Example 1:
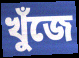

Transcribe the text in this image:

খুঁজে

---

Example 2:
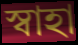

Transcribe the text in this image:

স্বাহা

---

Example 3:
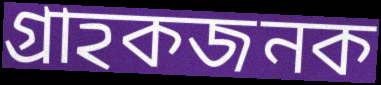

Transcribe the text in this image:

গ্ৰাহকজনক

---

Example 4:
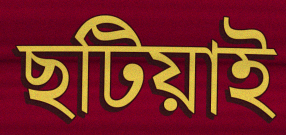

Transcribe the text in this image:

ছটিয়াই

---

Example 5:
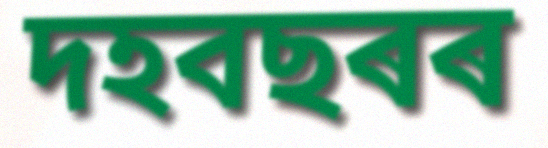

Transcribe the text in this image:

দহবছৰৰ